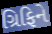
ગ્રિફિને